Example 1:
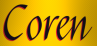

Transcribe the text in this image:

Coren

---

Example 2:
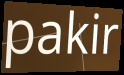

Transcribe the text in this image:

pakir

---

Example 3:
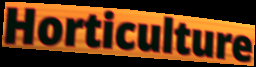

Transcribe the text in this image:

Horticulture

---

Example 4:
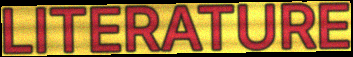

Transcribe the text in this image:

LITERATURE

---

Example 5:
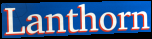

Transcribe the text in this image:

Lanthorn